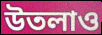
উতলাও